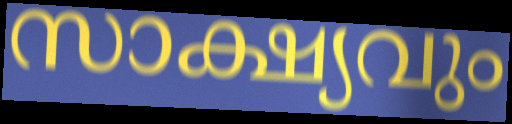
സാക്ഷ്യവും